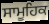
ਸਾਮੂਹਿਕ